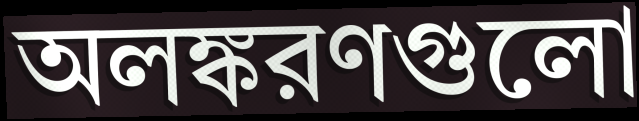
অলঙ্করণগুলো